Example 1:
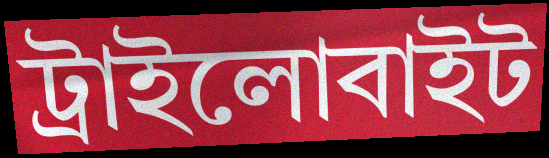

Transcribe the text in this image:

ট্রাইলোবাইট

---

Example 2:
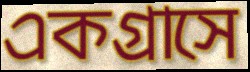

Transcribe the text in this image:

একগ্রাসে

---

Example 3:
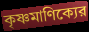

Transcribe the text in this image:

কৃষ্ণমাণিক্যের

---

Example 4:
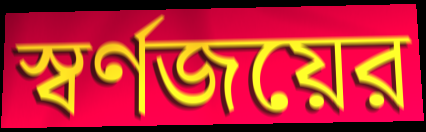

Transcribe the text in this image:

স্বর্ণজয়ের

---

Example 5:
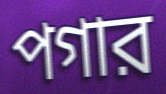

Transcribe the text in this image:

পগার